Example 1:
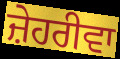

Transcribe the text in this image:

ਜ਼ੇਹਰੀਵਾ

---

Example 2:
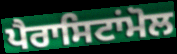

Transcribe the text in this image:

ਪੈਰਾਸਿਟਾਂਮੋਲ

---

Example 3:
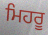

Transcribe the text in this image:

ਮਿਹਰੂ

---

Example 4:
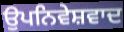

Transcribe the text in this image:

ਉਪਨਿਵੇਸ਼ਵਾਦ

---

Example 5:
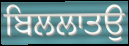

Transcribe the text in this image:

ਬਿਲਲਾਤਉ